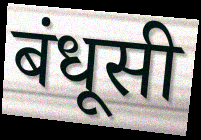
बंधूसी